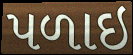
પળાઇ